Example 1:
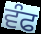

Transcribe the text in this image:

ਵੰਫ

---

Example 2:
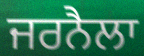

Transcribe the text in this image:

ਜਰਨੈਲਾ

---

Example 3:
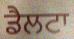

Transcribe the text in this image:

ਡੈਲਟਾ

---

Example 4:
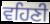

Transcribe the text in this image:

ਵਹਿਣੀ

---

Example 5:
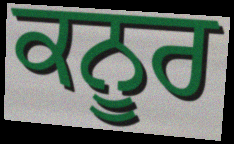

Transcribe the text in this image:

ਕਨੂਰ